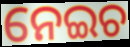
ନେଇଚ